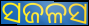
ସଜଳସ